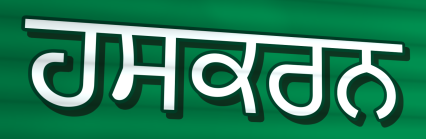
ਹਸਕਰਨ